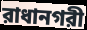
রাধানগরী